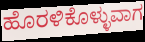
ಹೊರಳಿಕೊಳ್ಳುವಾಗ